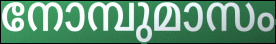
നോമ്പുമാസം